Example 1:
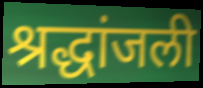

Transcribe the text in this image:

श्रद्धांजली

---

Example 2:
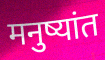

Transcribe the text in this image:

मनुष्यांत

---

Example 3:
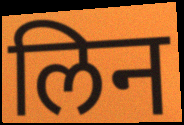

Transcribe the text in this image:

लिन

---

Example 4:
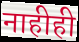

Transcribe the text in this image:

नाहीही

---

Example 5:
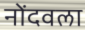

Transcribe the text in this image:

नोंदवला